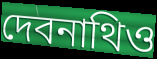
দেবনাথিও